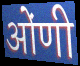
ओंणी